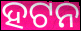
ହଟନ